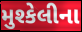
મુશ્કેલીના